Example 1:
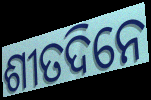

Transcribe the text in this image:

ଶୀତଦିନେ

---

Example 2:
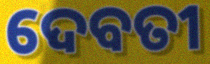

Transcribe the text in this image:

ଦେବତୀ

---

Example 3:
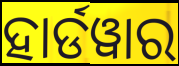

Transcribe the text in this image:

ହାର୍ଡୱାର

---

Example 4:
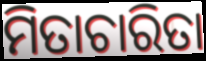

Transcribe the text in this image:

ମିତାଚାରିତା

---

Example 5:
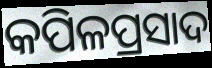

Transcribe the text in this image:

କପିଳପ୍ରସାଦ